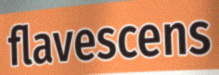
flavescens